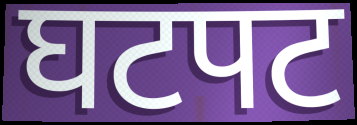
घटपट